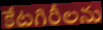
కేటగిరీలను